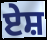
ਏਸ਼